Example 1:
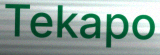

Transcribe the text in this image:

Tekapo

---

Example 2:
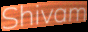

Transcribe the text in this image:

Shivam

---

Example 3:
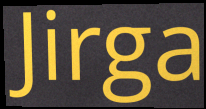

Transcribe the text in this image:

Jirga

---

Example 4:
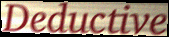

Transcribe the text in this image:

Deductive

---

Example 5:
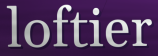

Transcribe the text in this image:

loftier